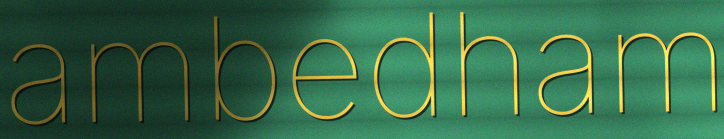
ambedham